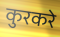
कुरकरे